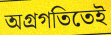
অগ্রগতিতেই